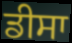
ਡੀਸਾ